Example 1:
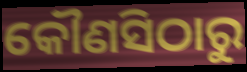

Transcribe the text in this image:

କୌଣସିଠାରୁ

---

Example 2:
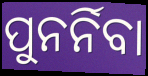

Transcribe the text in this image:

ପୁନର୍ନିବା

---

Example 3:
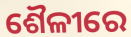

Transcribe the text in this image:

ଶୈଳୀରେ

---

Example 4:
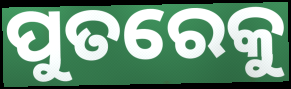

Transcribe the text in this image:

ପୁତରେକୁ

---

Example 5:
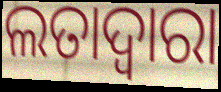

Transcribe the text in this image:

ଲତାଦ୍ୱାରା